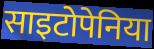
साइटोपेनिया